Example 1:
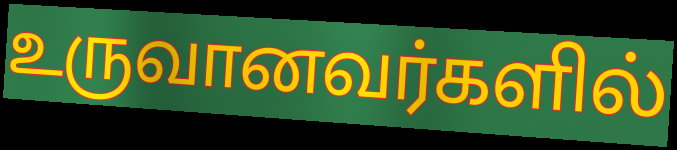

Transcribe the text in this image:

உருவானவர்களில்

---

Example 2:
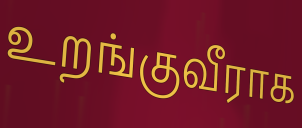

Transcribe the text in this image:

உறங்குவீராக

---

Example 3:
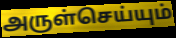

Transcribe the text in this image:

அருள்செய்யும்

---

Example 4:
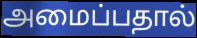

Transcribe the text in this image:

அமைப்பதால்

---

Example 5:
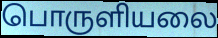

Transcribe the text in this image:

பொருளியலை